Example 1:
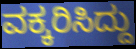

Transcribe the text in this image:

ವಕ್ಕರಿಸಿದ್ದು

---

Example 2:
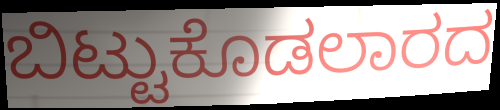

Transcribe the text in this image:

ಬಿಟ್ಟುಕೊಡಲಾರದ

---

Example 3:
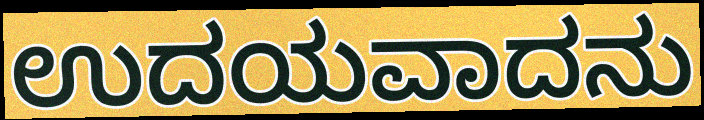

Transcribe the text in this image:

ಉದಯವಾದನು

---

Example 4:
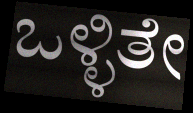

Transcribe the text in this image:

ಒಳ್ಳಿತೇ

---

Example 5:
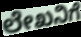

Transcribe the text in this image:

ಲೇಖನಿಗೆ